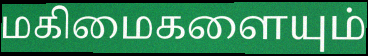
மகிமைகளையும்